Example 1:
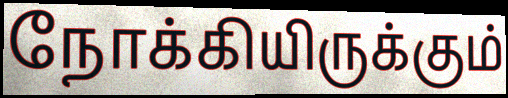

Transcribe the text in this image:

நோக்கியிருக்கும்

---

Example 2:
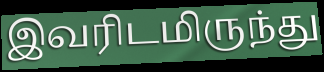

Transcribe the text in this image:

இவரிடமிருந்து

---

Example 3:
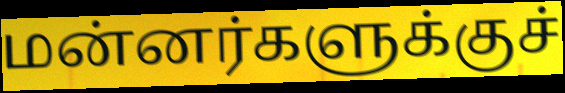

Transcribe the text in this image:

மன்னர்களுக்குச்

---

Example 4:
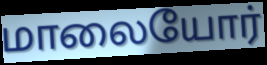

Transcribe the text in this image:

மாலையோர்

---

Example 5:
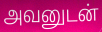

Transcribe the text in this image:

அவனுடன்